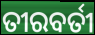
ତୀରବର୍ତୀ